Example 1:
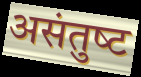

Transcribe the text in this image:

असंतुष्‍ट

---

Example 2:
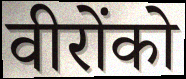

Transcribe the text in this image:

वीरोंको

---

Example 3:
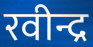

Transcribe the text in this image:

रवीन्द्र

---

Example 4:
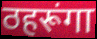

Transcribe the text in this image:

ठहरूंगा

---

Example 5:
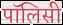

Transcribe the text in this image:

पॉलिसी